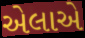
એલાએ